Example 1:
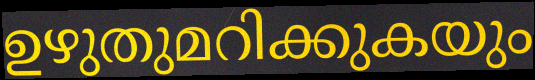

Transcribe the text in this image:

ഉഴുതുമറിക്കുകയും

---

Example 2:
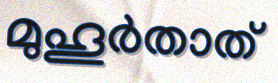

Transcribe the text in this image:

മുഹൂർതാത്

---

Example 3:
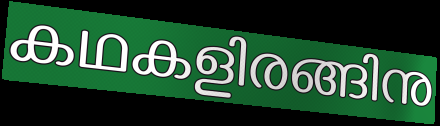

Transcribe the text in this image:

കഥകളിരങ്ങിനു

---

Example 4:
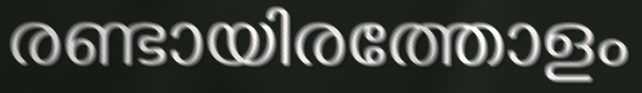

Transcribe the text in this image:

രണ്ടായിരത്തോളം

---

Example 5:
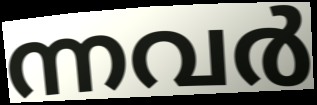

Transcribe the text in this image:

ന്നവർ